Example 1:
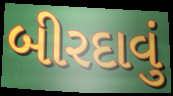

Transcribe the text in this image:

બીરદાવું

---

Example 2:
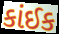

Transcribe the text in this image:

કાંઈક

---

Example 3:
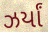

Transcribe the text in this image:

ઝર્યાં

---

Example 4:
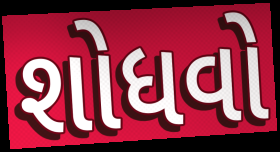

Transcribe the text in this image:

શોધવો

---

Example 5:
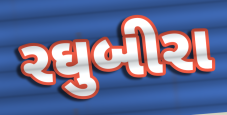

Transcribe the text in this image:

રઘુબીરા